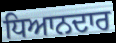
ਧਿਆਨਦਾਰ